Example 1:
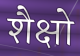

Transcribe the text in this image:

शैक्षो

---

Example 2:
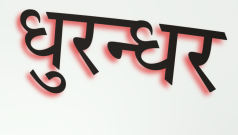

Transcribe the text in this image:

धुरन्धर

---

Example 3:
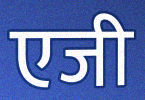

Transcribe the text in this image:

एजी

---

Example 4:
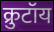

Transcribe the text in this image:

क्रुटॉय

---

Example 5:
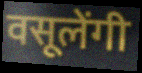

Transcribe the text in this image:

वसूलेंगी